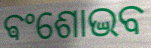
ଵଂଶୋଦ୍ଭବ